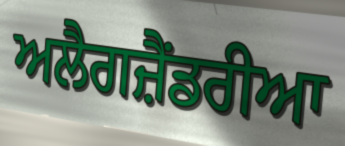
ਅਲੈਗਜ਼ੈਂਡਰੀਆ